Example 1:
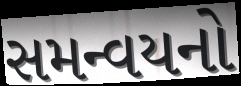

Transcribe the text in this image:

સમન્વયનો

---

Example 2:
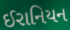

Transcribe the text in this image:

ઈરાનિયન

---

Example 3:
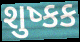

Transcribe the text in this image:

શુષ્કક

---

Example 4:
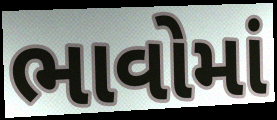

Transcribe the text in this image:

ભાવોમાં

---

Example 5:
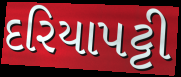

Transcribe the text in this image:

દરિયાપટ્ટી